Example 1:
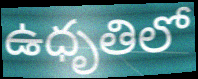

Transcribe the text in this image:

ఉధృతిలో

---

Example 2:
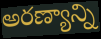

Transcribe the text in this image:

అరణ్యాన్ని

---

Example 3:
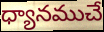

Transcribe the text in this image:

ధ్యానముచే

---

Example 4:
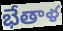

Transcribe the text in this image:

భేతాళ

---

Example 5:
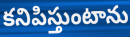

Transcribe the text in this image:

కనిపిస్తుంటాను